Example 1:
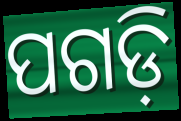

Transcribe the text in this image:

ପଗଡ଼ି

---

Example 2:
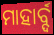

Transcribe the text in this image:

ମାହାର୍ବ୍ଦ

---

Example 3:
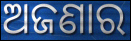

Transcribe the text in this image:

ଅଜଣାର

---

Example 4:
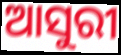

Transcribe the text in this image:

ଆସୁରୀ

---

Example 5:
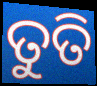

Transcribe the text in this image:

ତୁତି